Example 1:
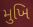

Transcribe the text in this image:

મુખિ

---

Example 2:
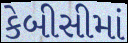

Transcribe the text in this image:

કેબીસીમાં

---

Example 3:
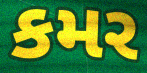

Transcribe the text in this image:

કમર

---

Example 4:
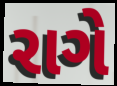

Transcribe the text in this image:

રાગે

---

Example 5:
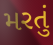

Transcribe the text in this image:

મરતું